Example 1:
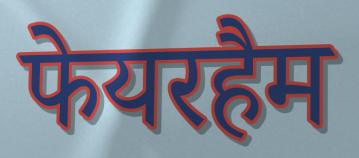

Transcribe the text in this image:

फेयरहैम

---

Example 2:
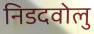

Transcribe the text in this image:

निडदवोलु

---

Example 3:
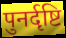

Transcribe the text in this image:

पुनर्दृष्टि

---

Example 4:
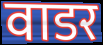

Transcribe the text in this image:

वाडर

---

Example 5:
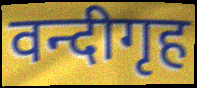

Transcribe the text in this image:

वन्दीगृह